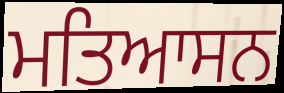
ਮਤਿਆਸਨ